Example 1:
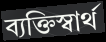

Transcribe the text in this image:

ব্যক্তিস্বার্থ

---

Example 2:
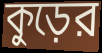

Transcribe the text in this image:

কুড়ের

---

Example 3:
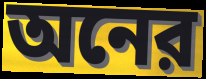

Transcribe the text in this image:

অনের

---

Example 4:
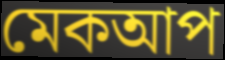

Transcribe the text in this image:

মেকআপ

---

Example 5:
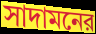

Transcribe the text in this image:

সাদামনের